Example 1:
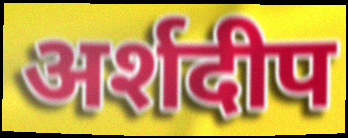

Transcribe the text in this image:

अर्शदीप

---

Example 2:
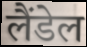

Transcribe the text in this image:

लैंडेल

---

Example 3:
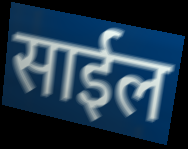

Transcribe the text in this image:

साईल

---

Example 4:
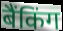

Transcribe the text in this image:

बैंकिंग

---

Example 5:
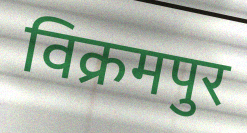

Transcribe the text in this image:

विक्रमपुर